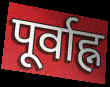
पूर्वाह्न